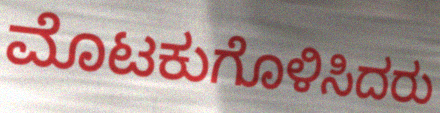
ಮೊಟಕುಗೊಳಿಸಿದರು